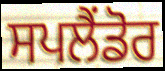
ਸਪਲੈਂਡੋਰ